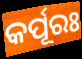
କର୍ପୂରଃ